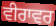
ਵੀਰਾਵਰ